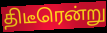
திடீரென்று